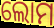
ଲୋମ